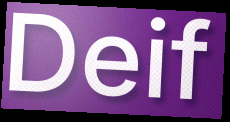
Deif